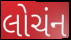
લોચંન